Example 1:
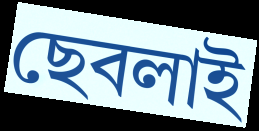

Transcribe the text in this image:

ছেবলাই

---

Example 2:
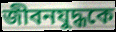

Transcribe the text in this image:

জীবনযুদ্ধকে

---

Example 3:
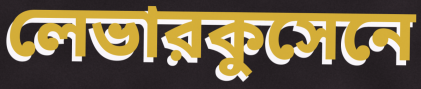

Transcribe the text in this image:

লেভারকুসেনে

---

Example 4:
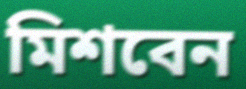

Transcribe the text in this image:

মিশবেন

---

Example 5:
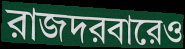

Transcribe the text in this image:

রাজদরবারেও